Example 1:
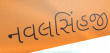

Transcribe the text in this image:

નવલસિંહજી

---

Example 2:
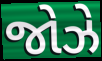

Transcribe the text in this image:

જોઝે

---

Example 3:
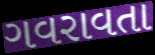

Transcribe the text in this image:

ગવરાવતા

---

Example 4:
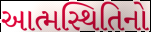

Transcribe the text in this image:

આત્મસ્થિતિનો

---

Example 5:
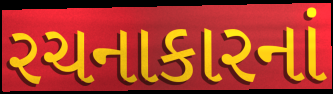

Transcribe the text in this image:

રચનાકારનાં